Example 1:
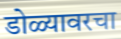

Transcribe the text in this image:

डोळ्यावरचा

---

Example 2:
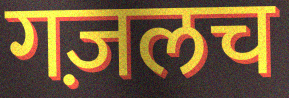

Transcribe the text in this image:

गज़लच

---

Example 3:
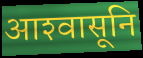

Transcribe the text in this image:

आश्वासूनि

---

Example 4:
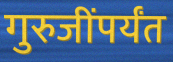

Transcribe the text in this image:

गुरुजींपर्यंत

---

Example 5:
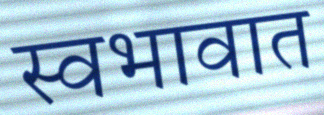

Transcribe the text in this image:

स्वभावात